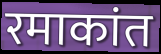
रमाकांत